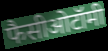
फैसीओटॉमी